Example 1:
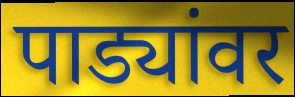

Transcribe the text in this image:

पाड्यांवर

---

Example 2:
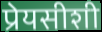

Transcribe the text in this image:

प्रेयसीशी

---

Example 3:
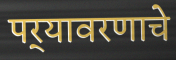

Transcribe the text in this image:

पर्यावरणाचे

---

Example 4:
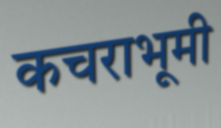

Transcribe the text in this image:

कचराभूमी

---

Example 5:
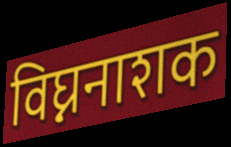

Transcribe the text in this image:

विघ्ननाशक